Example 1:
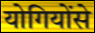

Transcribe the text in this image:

योगियोंसे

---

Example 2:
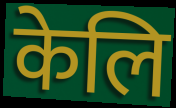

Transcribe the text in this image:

केलि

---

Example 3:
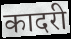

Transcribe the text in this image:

कादरी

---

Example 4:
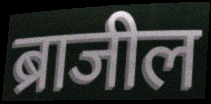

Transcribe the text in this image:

ब्राजील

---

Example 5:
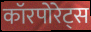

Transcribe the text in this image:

कॉरपोरेट्स